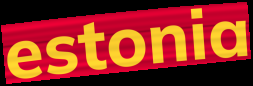
estonia